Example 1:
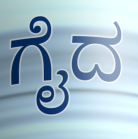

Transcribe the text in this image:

ಗೈದ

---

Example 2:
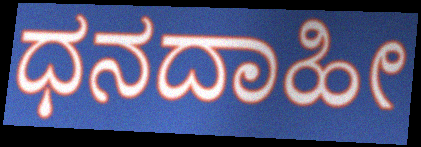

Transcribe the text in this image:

ಧನದಾಹೀ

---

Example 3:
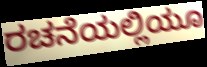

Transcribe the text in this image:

ರಚನೆಯಲ್ಲಿಯೂ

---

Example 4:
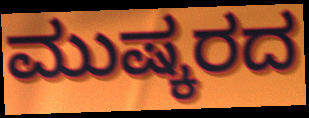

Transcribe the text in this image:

ಮುಷ್ಕರದ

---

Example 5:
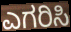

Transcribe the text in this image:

ಎಗರಿಸಿ